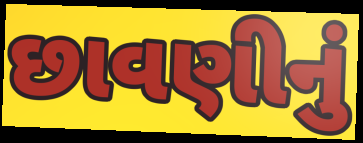
છાવણીનું